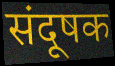
संदूषक